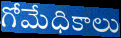
గోమేధికాలు